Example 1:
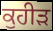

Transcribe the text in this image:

ਕੁਹੀੜ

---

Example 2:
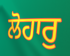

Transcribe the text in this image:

ਲੋਹਾਰੁ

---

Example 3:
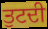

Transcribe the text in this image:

ਤੁਟਦੀ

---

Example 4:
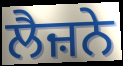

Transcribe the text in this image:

ਲੈਜ਼ਨੇ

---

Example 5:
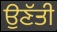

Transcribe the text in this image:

ਉਣੱਤੀ